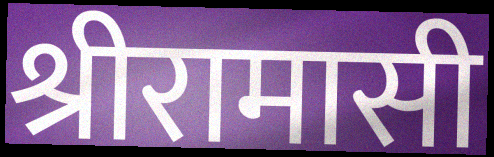
श्रीरामासी